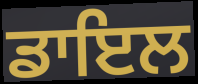
ਡਾਇਲ